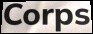
Corps